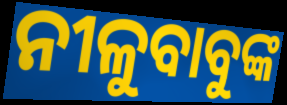
ନୀଳୁବାବୁଙ୍କ